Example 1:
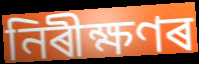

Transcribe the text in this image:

নিৰীক্ষণৰ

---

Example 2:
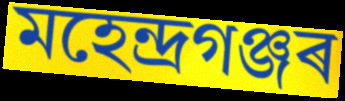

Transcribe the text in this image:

মহেন্দ্ৰগঞ্জৰ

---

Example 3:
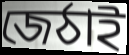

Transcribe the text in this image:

জেঠাই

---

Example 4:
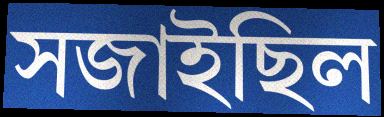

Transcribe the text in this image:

সজাইছিল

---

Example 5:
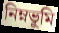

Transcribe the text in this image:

নিম্নভূমি